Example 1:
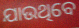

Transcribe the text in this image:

ଯାଉଥିବେ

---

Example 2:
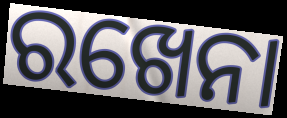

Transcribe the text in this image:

ରଖେନା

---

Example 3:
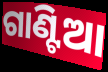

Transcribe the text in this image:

ଗାଣ୍ଟିଆ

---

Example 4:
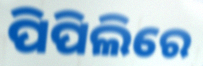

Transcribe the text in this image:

ପିପିଲିରେ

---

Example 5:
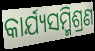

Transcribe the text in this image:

କାର୍ଯ୍ୟସମ୍ମିଶ୍ରଣ